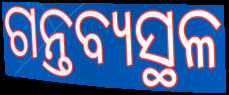
ଗନ୍ତବ୍ୟସ୍ଥଳ